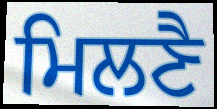
ਮਿਲਣੈ